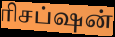
ரிசப்ஷன்